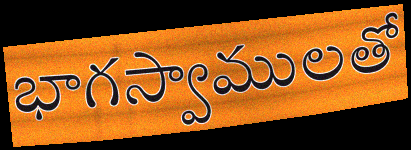
భాగస్వాములతో